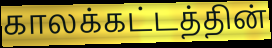
காலக்கட்டத்தின்